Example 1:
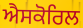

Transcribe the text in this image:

ਐਸਕੋਰਿਲ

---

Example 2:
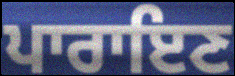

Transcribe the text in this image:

ਪਾਰਾਇਣ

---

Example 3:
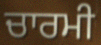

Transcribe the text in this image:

ਚਾਰਮੀ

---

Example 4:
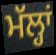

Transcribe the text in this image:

ਮੱਲ੍ਹਾਂ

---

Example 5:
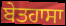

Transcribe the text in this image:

ਬੇਤਹਾਸਾ